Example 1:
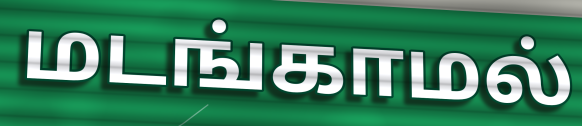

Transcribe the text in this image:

மடங்காமல்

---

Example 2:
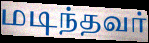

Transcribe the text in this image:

மடிந்தவர்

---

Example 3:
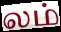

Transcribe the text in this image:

லம்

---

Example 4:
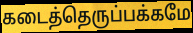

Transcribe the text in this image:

கடைத்தெருப்பக்கமே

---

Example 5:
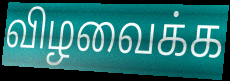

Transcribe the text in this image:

விழவைக்க